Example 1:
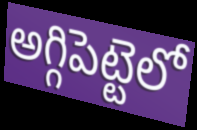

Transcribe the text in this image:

అగ్గిపెట్టెలో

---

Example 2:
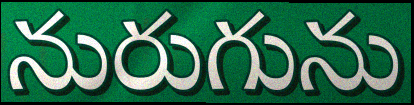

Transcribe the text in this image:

నురుగును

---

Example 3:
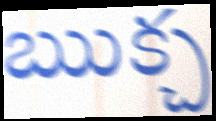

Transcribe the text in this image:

ఋక్చ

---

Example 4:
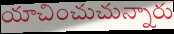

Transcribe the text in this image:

యాచించుచున్నారు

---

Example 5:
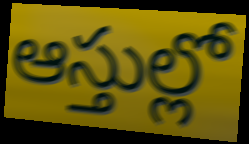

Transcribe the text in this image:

ఆస్తుల్లో